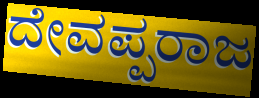
ದೇವಪ್ಪರಾಜ